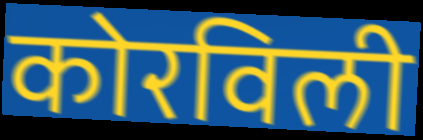
कोरविली